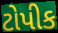
ટોપીક